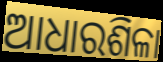
ଆଧାରଶିଳା